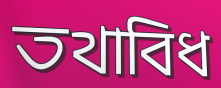
তথাবিধ